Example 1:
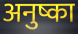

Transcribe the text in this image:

अनुष्का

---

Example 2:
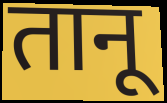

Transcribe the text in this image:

तानू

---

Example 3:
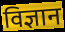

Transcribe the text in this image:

विज्ञान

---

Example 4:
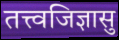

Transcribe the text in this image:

तत्त्वजिज्ञासु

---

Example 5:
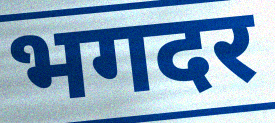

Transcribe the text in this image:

भगदर